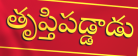
తృప్తిపడ్డాడు